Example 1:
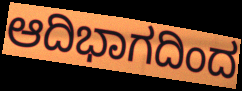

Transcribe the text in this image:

ಆದಿಭಾಗದಿಂದ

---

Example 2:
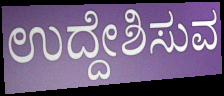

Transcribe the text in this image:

ಉದ್ದೇಶಿಸುವ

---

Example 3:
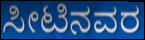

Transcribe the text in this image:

ಸೀಟಿನವರ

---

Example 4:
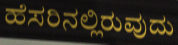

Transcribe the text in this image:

ಹೆಸರಿನಲ್ಲಿರುವುದು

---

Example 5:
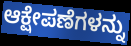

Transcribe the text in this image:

ಆಕ್ಷೇಪಣೆಗಳನ್ನು